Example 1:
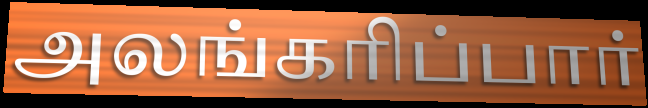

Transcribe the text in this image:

அலங்கரிப்பார்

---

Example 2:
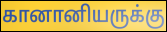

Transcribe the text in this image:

கானானியருக்கு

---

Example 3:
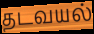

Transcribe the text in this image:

தடவயல்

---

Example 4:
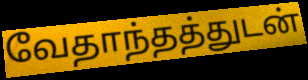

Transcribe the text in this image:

வேதாந்தத்துடன்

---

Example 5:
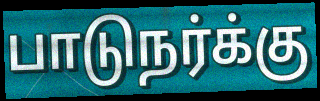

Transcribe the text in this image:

பாடுநர்க்கு